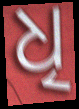
ଧି